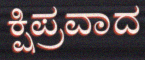
ಕ್ಷಿಪ್ರವಾದ